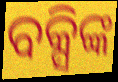
ବକ୍ସିଙ୍କ